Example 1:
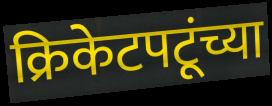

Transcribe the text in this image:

क्रिकेटपटूंच्या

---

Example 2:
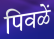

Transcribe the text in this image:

पिवळें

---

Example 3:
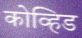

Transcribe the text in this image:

कोव्हिड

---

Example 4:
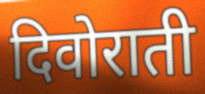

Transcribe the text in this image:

दिवोराती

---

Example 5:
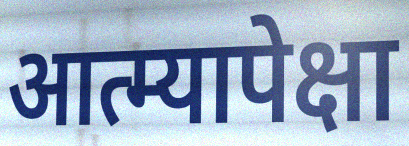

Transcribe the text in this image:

आत्म्यापेक्षा